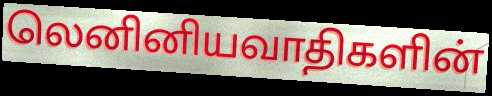
லெனினியவாதிகளின்